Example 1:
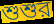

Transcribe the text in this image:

শুশুর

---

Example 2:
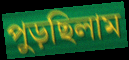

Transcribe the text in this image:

পুড়ছিলাম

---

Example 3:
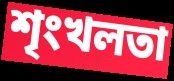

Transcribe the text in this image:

শৃংখলতা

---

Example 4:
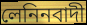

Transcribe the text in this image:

লেনিনবাদী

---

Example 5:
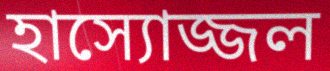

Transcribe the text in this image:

হাস্যোজ্জল